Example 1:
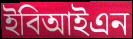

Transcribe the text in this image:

ইবিআইএন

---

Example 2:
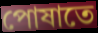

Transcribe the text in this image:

পোষাতে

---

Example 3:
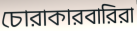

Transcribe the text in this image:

চোরাকারবারিরা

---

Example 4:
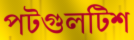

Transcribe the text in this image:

পটগুলটিশ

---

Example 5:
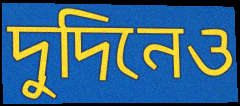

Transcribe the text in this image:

দুদিনেও